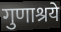
गुणाश्रये